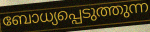
ബോധ്യപ്പെടുത്തുന്ന